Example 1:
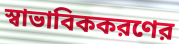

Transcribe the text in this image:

স্বাভাবিককরণের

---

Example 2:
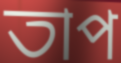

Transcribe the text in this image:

তাপ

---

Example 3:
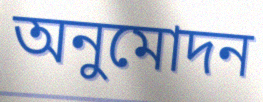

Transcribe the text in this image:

অনুমোদন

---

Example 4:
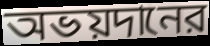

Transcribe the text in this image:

অভয়দানের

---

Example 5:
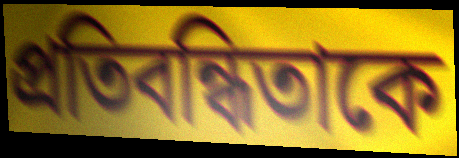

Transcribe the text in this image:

প্রতিবন্ধিতাকে